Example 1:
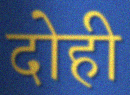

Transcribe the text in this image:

दोही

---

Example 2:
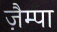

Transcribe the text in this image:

ज़ैम्पा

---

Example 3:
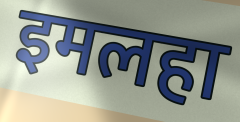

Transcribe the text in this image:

इमलहा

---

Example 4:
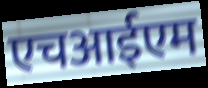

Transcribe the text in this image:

एचआईएम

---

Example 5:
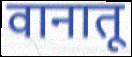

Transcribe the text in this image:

वानातू